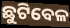
ଛୁଟିବେଳ